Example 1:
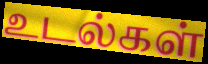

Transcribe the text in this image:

உடல்கள்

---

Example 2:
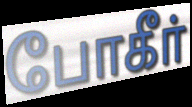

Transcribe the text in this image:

போகீர்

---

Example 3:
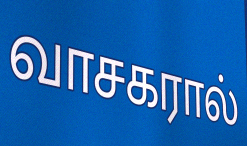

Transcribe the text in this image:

வாசகரால்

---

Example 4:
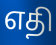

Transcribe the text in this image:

எதி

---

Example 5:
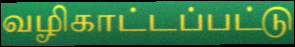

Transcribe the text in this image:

வழிகாட்டப்பட்டு